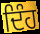
ਦਿੰਹ